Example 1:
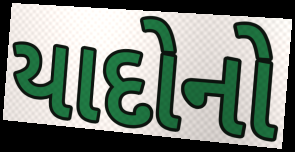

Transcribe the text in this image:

યાદોનો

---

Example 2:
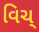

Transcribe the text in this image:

વિચ્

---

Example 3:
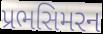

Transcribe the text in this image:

પ્રભસિમરન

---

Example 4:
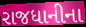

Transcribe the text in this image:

રાજધાનીના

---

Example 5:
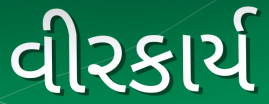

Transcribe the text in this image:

વીરકાર્ય